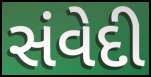
સંવેદી